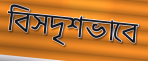
বিসদৃশভাবে